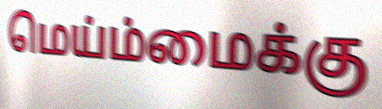
மெய்ம்மைக்கு